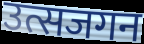
उत्सजगन